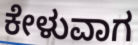
ಕೇಳುವಾಗ